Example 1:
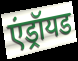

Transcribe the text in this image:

एंड्रॉयड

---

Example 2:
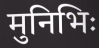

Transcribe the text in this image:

मुनिभिः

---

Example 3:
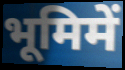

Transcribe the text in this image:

भूमिमें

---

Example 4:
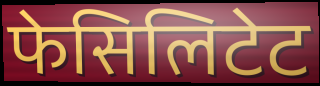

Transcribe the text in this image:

फेसिलिटेट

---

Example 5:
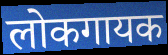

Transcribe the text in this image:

लोकगायक